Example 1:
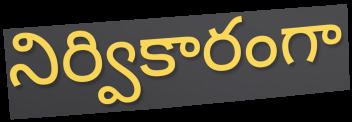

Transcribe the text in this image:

నిర్వికారంగా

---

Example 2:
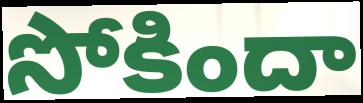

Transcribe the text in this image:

సోకిందా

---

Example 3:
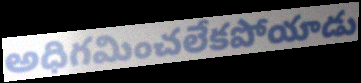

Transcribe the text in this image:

అధిగమించలేకపోయాడు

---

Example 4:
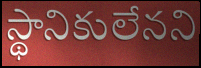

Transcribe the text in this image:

స్థానికులేనని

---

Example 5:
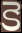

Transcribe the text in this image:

కె